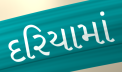
દરિયામાં